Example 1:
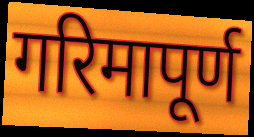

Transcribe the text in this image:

गरिमापूर्ण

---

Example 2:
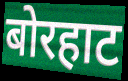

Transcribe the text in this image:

बोरहाट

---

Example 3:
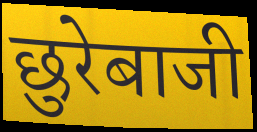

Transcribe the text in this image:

छुरेबाजी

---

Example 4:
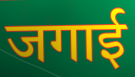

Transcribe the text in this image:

जगाई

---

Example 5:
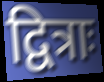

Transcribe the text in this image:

द्वित्राः